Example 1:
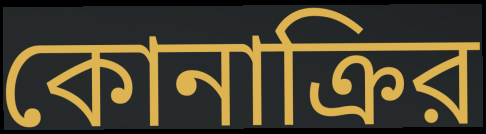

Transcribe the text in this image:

কোনাক্রির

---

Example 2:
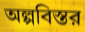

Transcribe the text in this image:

অল্পবিস্তর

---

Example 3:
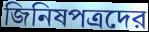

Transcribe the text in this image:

জিনিষপত্রদের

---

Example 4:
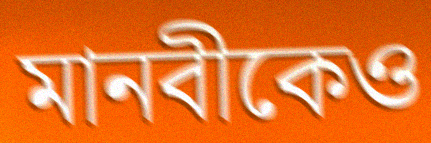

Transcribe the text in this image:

মানবীকেও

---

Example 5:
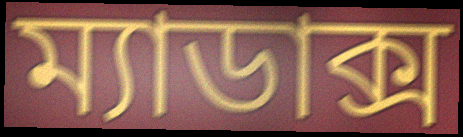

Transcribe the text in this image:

ম্যাডাক্স